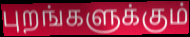
புறங்களுக்கும்